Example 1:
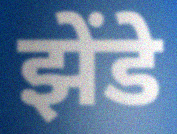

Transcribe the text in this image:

झेंडे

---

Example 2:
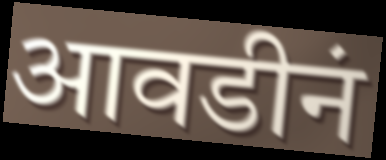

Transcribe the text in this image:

आवडीनं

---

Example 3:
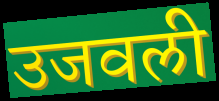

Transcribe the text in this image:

उजवली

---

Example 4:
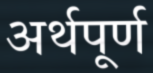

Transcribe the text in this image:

अर्थपूर्ण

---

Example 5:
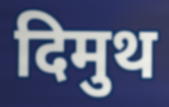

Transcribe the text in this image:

दिमुथ